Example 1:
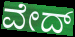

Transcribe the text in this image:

ವೇದ್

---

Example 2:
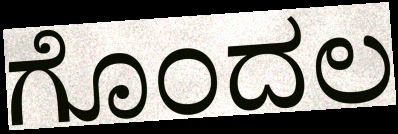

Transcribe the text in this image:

ಗೊಂದಲ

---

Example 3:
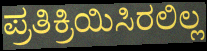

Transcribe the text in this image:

ಪ್ರತಿಕ್ರಿಯಿಸಿರಲಿಲ್ಲ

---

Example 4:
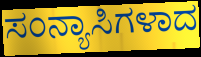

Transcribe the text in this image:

ಸಂನ್ಯಾಸಿಗಳಾದ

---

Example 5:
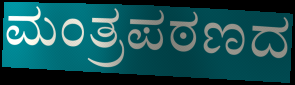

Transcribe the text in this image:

ಮಂತ್ರಪಠಣದ